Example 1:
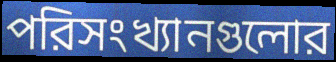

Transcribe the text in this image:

পরিসংখ্যানগুলোর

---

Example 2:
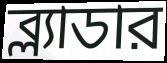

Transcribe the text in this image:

ব্ল্যাডার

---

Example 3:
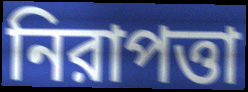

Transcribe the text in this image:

নিরাপত্তা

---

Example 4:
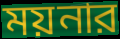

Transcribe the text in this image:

ময়নার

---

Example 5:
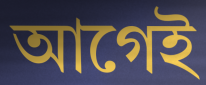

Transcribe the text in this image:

আগেই